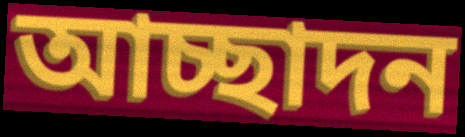
আচ্ছাদন